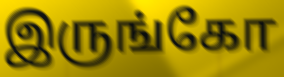
இருங்கோ